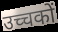
उच्चकों